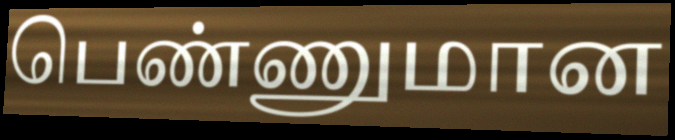
பெண்ணுமான